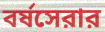
বর্ষসেরার